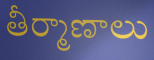
తీర్మాణాలు